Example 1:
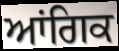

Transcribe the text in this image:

ਆਂਗਿਕ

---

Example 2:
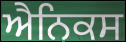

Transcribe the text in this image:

ਐਨਿਕਸ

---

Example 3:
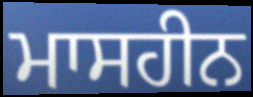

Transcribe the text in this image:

ਮਾਸਹੀਨ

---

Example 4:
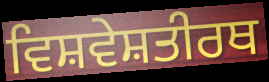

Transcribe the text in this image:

ਵਿਸ਼ਵੇਸ਼ਤੀਰਥ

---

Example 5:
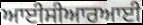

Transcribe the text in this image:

ਆਈਸੀਆਰਆਈ